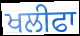
ਖਲੀਫਾ